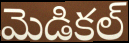
మెడికల్